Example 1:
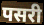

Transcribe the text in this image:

पसरी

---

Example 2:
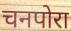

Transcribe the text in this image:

चनपोरा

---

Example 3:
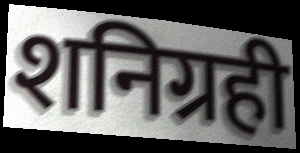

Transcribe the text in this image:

शनिग्रही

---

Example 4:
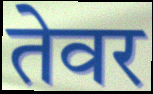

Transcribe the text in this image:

तेवर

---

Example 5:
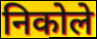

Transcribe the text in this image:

निकोले